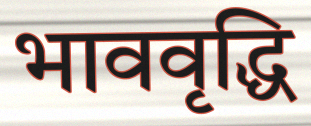
भाववृद्धि